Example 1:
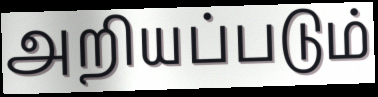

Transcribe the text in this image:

அறியப்படும்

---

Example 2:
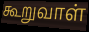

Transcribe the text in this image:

கூறுவாள்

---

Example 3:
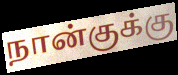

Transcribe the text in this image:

நான்குக்கு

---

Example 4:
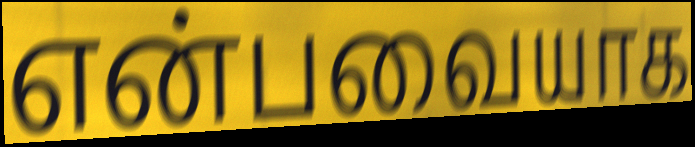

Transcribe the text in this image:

என்பவையாக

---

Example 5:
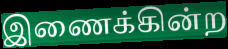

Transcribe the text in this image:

இணைக்கின்ற